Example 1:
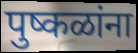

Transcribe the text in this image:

पुष्कळांना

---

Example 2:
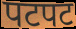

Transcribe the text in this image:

पटपट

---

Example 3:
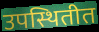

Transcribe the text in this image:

उपस्थितीत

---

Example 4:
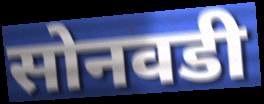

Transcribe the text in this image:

सोनवडी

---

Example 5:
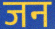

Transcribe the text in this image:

जन